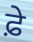
ਫ਼ੇ